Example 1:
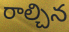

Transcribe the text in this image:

రాల్చిన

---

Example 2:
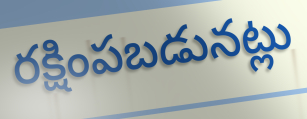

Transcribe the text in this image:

రక్షింపబడునట్లు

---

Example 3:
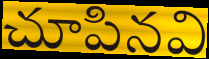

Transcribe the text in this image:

చూపినవి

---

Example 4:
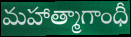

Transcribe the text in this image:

మహాత్మాగాంధీ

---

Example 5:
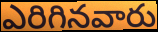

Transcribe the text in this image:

ఎరిగినవారు